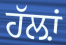
ਹੱਲ਼ਾਂ